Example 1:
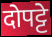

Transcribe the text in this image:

दोपट्टे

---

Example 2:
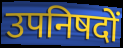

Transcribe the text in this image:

उपनिषदों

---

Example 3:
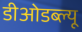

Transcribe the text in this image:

डीओडब्ल्यू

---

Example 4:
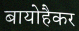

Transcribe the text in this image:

बायोहैकर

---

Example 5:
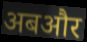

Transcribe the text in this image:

अबऔर